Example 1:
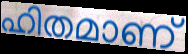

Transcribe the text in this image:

ഹിതമാണ്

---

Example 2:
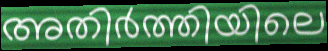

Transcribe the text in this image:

അതിർത്തിയിലെ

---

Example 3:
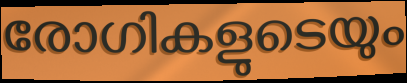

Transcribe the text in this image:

രോഗികളുടെയും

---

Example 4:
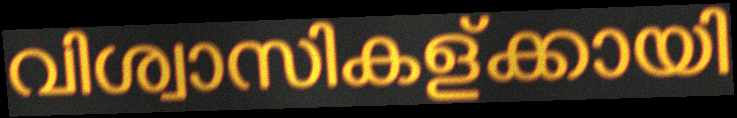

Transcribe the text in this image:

വിശ്വാസികള്ക്കായി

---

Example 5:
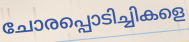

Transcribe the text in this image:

ചോരപ്പൊടിച്ചികളെ